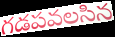
గడపవలసిన